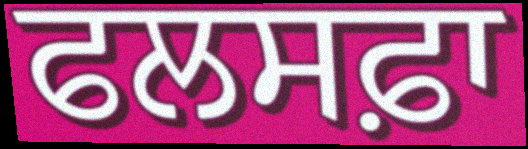
ਫਲਸਫ਼ਾ